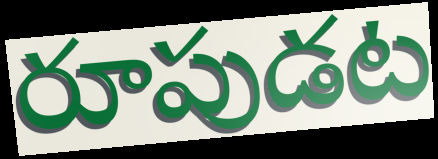
రూపుడట